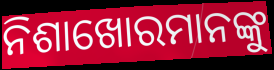
ନିଶାଖୋରମାନଙ୍କୁ